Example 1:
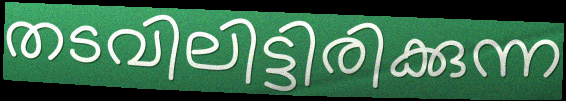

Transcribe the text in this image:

തടവിലിട്ടിരിക്കുന്ന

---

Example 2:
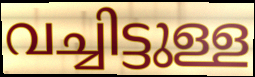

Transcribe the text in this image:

വച്ചിട്ടുള്ള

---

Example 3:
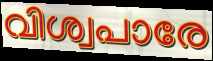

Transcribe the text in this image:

വിശ്വപാരേ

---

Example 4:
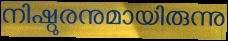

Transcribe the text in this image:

നിഷ്ഠുരനുമായിരുന്നു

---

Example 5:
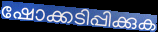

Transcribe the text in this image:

ഷോക്കടിപ്പിക്കുക